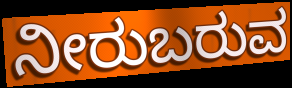
ನೀರುಬರುವ